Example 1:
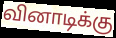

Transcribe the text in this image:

வினாடிக்கு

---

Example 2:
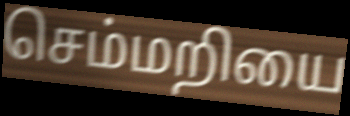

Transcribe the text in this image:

செம்மறியை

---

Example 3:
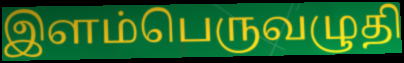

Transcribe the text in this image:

இளம்பெருவழுதி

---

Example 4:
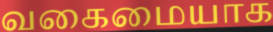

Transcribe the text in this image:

வகைமையாக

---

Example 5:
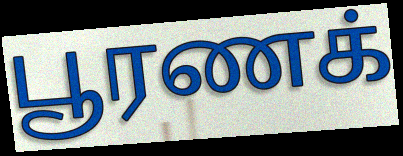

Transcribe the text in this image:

பூரணக்